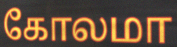
கோலமா